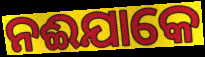
ନଈଯାକେ